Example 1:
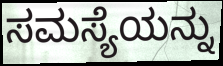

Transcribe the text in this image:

ಸಮಸ್ಯೆಯನ್ನು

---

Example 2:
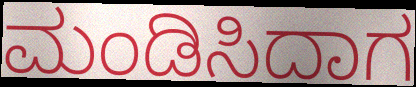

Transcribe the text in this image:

ಮಂಡಿಸಿದಾಗ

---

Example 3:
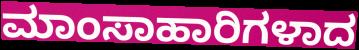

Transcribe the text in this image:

ಮಾಂಸಾಹಾರಿಗಳಾದ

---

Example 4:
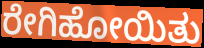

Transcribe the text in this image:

ರೇಗಿಹೋಯಿತು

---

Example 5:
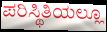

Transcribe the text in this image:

ಪರಿಸ್ಥಿತಿಯಲ್ಲೂ